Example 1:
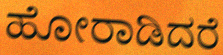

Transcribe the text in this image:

ಹೋರಾಡಿದರೆ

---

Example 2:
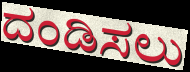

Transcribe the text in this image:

ದಂಡಿಸಲು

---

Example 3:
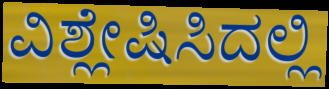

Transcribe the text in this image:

ವಿಶ್ಲೇಷಿಸಿದಲ್ಲಿ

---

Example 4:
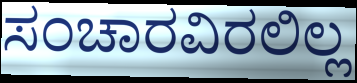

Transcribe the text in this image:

ಸಂಚಾರವಿರಲಿಲ್ಲ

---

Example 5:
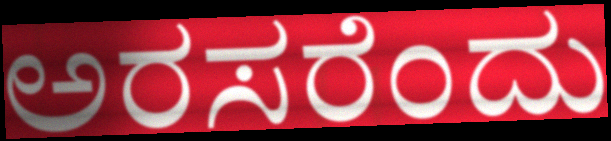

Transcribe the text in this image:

ಅರಸರೆಂದು